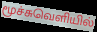
மூச்சுவெளியில்